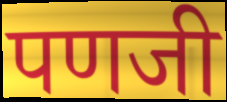
पणजी